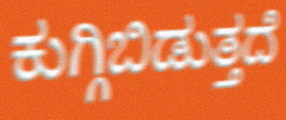
ಕುಗ್ಗಿಬಿಡುತ್ತದೆ